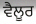
ਵੈਲੂਰ